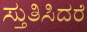
ಸ್ತುತಿಸಿದರೆ